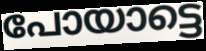
പോയാട്ടെ